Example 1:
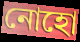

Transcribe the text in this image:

নোহো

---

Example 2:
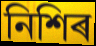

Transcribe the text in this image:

নিশিৰ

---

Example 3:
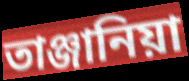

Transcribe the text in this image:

তাঞ্জানিয়া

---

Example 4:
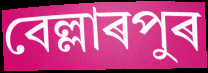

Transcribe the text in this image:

বেল্লাৰপুৰ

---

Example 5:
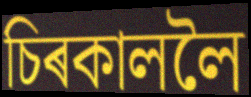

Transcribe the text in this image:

চিৰকাললৈ